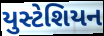
યુસ્ટેશિયન